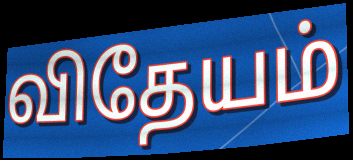
விதேயம்